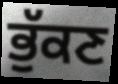
ਭੁੱਕਣ